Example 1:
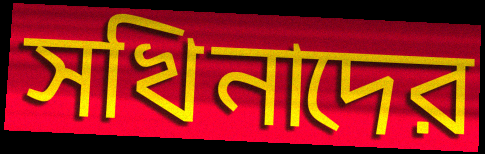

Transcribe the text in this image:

সখিনাদের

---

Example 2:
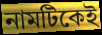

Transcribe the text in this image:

নামটিকেই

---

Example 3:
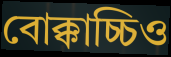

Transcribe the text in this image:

বোক্কাচ্চিও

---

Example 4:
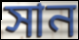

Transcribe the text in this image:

সান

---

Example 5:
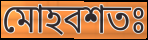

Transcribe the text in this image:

মোহবশতঃ